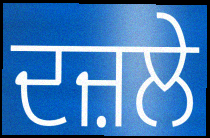
ਦਜ਼ਲੇ